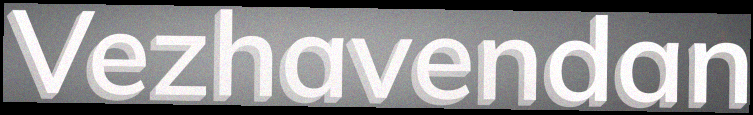
Vezhavendan